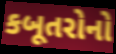
કબૂતરોનો